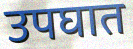
उपघात